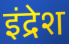
इंद्रेश